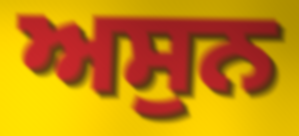
ਅਸੁਨ